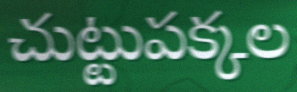
చుట్టుపక్కల